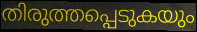
തിരുത്തപ്പെടുകയും